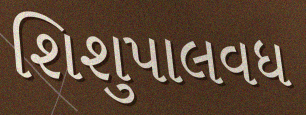
શિશુપાલવધ